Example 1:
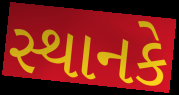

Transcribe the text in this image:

સ્થાનકે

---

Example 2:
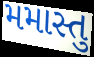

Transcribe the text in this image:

મમાસ્તુ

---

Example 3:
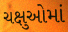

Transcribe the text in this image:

ચક્ષુઓમાં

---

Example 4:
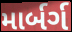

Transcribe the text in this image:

માર્બર્ગ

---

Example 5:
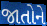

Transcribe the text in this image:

જાતોને